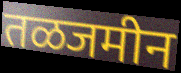
तळजमीन